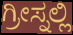
ಗ್ರೀಸ್ನಲ್ಲಿ